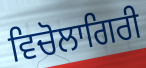
ਵਿਚੋਲਾਗਿਰੀ